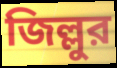
জিল্লুর